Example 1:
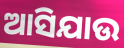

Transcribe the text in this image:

ଆସିଯାଉ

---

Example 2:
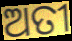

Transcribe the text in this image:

ଅତୀ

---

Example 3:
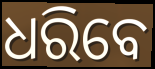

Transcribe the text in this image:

ଧରିବେ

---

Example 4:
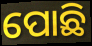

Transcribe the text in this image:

ପୋଛି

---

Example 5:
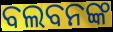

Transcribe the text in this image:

ବଲବନଙ୍କ